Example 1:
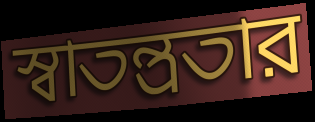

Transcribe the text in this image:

স্বাতন্ত্রতার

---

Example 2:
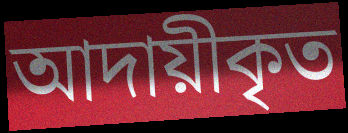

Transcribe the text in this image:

আদায়ীকৃত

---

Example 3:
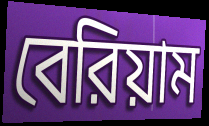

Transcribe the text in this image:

বেরিয়াম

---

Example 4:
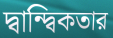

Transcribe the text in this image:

দ্বান্দ্বিকতার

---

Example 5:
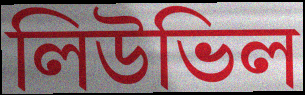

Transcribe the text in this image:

লিউভিল